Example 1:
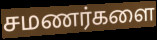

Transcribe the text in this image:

சமணர்களை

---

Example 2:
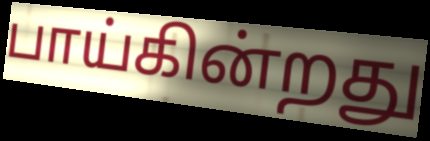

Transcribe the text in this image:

பாய்கின்றது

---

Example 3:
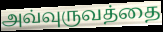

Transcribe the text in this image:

அவ்வுருவத்தை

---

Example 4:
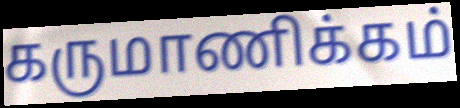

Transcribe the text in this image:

கருமாணிக்கம்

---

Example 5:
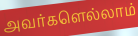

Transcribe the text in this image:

அவர்களெல்லாம்